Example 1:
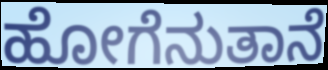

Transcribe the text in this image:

ಹೋಗೆನುತಾನೆ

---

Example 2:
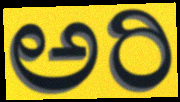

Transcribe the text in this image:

ಅರಿ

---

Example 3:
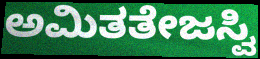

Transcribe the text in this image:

ಅಮಿತತೇಜಸ್ವಿ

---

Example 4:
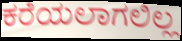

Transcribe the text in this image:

ಕರೆಯಲಾಗಲಿಲ್ಲ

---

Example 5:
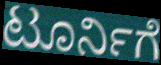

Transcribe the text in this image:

ಟೂರ್ನಿಗೆ